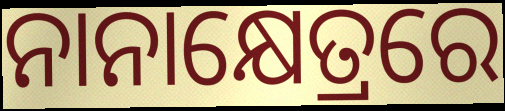
ନାନାକ୍ଷେତ୍ରରେ